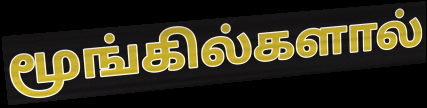
மூங்கில்களால்